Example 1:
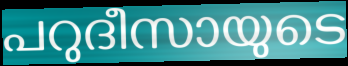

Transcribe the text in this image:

പറുദീസായുടെ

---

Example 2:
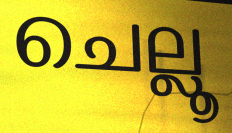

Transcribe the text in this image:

ചെല്ലൂ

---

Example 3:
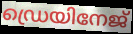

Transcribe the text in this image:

ഡ്രെയിനേജ്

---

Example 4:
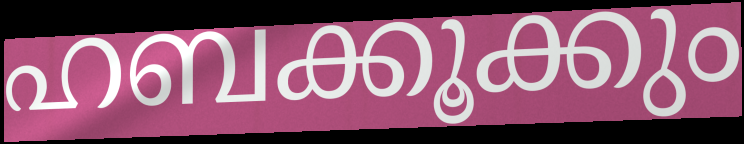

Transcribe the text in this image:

ഹബക്കൂക്കും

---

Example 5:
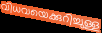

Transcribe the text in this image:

വിധവയെക്കുറിച്ചുള്ള